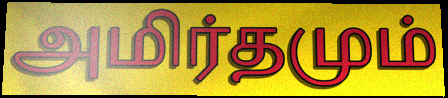
அமிர்தமும்